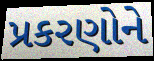
પ્રકરણોને